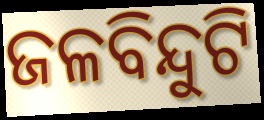
ଜଳବିନ୍ଦୁଟି